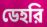
ডেহরি